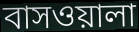
বাসওয়ালা